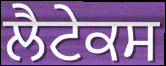
ਲੈਟੇਕਸ